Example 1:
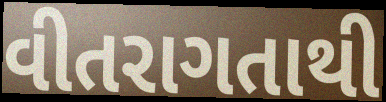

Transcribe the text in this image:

વીતરાગતાથી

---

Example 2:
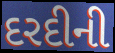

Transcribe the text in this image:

દરદીની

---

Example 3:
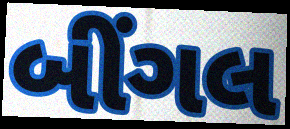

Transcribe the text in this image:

બીંગલ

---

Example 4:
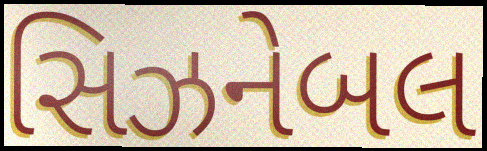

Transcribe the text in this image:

સિઝનેબલ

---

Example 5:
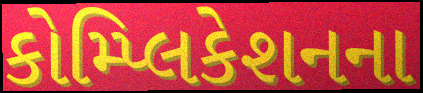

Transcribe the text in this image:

કોમ્પ્લિકેશનના